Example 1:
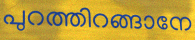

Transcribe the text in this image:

പുറത്തിറങ്ങാനേ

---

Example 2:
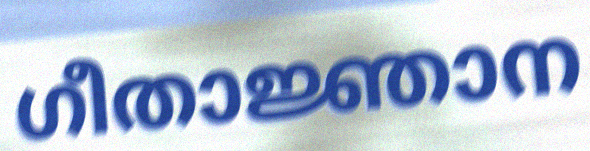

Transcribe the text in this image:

ഗീതാജ്ഞാന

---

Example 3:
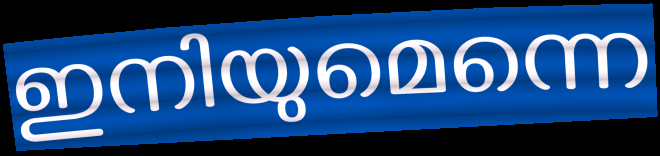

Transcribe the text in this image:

ഇനിയുമെന്നെ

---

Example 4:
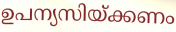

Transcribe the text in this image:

ഉപന്യസിയ്ക്കണം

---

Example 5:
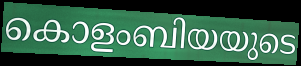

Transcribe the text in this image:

കൊളംബിയയുടെ